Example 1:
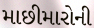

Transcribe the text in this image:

માછીમારોની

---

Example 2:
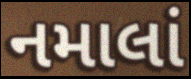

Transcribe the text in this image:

નમાલાં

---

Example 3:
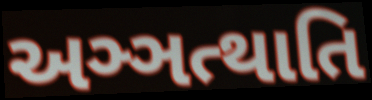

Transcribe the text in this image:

અઞ્ઞત્થાતિ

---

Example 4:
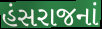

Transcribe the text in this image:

હંસરાજનાં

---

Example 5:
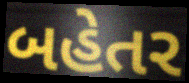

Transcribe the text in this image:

બહેતર